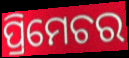
ପ୍ରିମେଚର